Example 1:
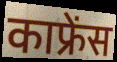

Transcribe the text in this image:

काफ्रेंस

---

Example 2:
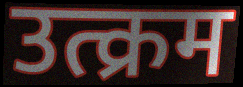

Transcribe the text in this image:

उत्क्रम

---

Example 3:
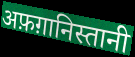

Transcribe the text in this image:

अफ़ग़ानिस्तानी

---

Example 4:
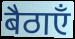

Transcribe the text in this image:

बैठाएँ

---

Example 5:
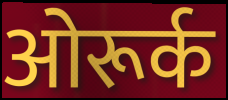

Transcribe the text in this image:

ओरूर्क